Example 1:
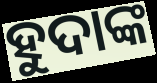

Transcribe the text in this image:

ହୁଦାଙ୍କ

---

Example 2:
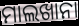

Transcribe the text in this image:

ମାଲଖାନା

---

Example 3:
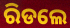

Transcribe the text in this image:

ରିଡଲେ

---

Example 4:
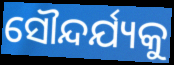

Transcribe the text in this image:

ସୌନ୍ଦର୍ଯ୍ୟକୁ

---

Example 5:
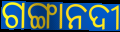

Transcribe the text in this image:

ଗଙ୍ଗାନଦୀ